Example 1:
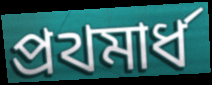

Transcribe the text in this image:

প্রথমার্ধ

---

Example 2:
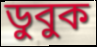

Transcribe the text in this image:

ডুবুক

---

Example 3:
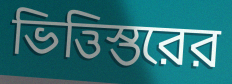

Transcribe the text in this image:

ভিত্তিস্তরের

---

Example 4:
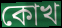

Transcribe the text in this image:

কোখ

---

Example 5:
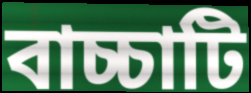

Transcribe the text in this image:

বাচ্চাটি